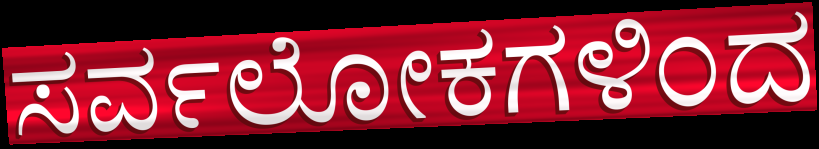
ಸರ್ವಲೋಕಗಳಿಂದ